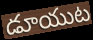
డూయుట